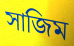
সাজিম